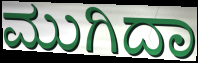
ಮುಗಿದಾ